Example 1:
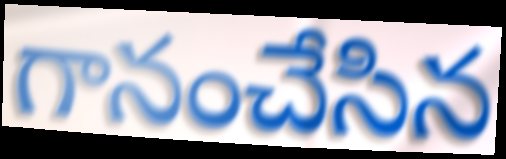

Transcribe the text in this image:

గానంచేసిన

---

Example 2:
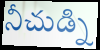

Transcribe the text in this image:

నీచుడ్ని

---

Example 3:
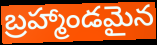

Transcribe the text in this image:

బ్రహ్మాండమైన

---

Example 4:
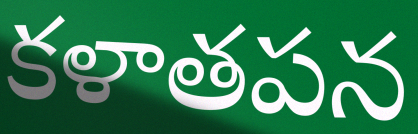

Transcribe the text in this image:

కళాతపన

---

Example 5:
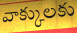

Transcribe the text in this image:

వాక్కులకు